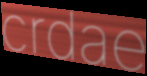
crdae